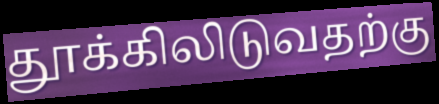
தூக்கிலிடுவதற்கு